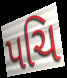
પચિ